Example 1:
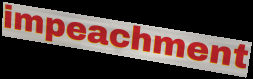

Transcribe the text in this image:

impeachment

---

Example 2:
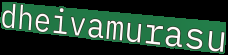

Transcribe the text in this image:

dheivamurasu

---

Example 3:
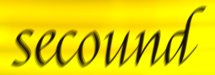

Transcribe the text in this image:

secound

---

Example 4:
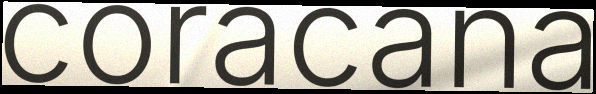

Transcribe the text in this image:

coracana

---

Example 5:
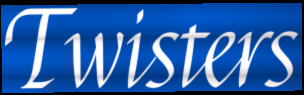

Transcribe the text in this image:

Twisters